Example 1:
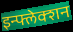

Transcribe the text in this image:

इन्फ्लेक्शन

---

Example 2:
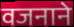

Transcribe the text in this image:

वजनाने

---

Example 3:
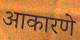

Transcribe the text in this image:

आकारणे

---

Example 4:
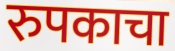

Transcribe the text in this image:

रुपकाचा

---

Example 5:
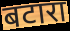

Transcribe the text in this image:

बटारा